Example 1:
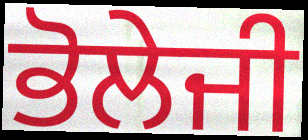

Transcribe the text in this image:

ਭੋਲੇਜੀ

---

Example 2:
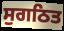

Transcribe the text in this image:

ਸੁਗਠਿਤ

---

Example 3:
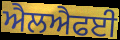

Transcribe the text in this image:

ਐਲਐਫਈ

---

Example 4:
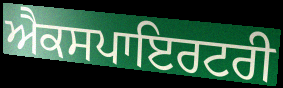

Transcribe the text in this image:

ਐਕਸਪਾਇਰਟਰੀ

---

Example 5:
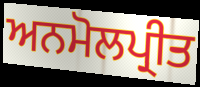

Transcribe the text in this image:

ਅਨਮੋਲਪ੍ਰੀਤ